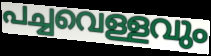
പച്ചവെള്ളവും